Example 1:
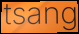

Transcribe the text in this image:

tsang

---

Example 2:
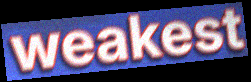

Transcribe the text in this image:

weakest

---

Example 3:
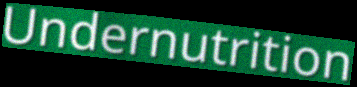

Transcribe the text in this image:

Undernutrition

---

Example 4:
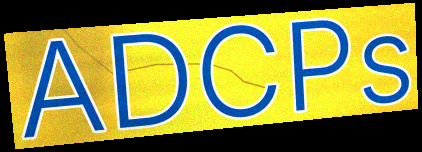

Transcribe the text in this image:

ADCPs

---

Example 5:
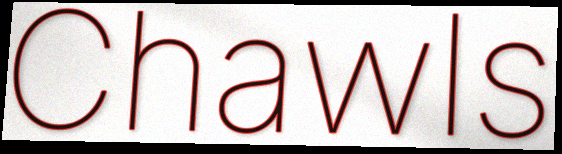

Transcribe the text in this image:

Chawls